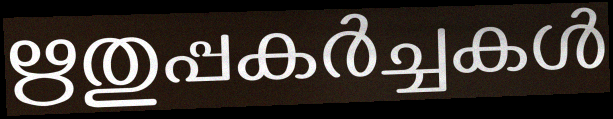
ഋതുപ്പകർച്ചകൾ